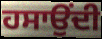
ਹਸਾਉਂਦੀ